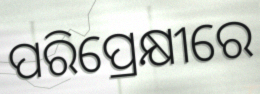
ପରିପ୍ରେକ୍ଷୀରେ